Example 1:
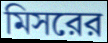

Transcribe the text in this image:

মিসরের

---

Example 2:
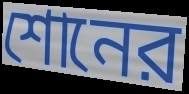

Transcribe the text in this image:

শোনের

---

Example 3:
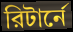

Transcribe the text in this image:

রিটার্নে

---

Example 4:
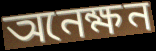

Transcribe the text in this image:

অনেক্ষন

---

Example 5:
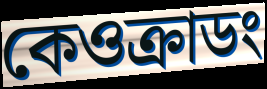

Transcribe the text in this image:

কেওক্রাডং